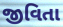
જીવિતા